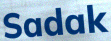
Sadak